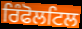
ਰਿੰਫੋਲਟਿਲ